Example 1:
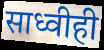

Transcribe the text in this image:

साध्वीही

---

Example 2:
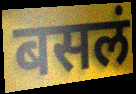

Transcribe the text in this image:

बसलं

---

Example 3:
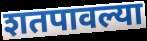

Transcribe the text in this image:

शतपावल्या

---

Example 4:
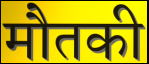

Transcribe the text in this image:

मौतकी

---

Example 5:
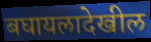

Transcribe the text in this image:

बघायलादेखील